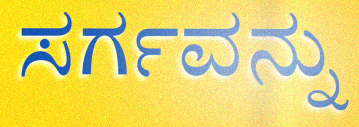
ಸರ್ಗವನ್ನು